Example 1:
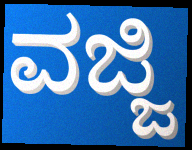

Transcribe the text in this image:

ವಜ್ಜಿ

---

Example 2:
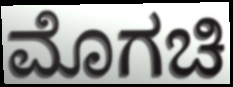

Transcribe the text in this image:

ಮೊಗಚಿ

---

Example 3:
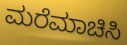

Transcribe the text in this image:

ಮರೆಮಾಚಿಸಿ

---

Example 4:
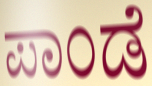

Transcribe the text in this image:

ಪಾಂಡೆ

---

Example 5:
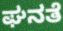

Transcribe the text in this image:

ಘನತೆ